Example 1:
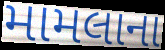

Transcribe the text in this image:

મામલાના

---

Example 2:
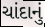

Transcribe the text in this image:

ચાંદાનું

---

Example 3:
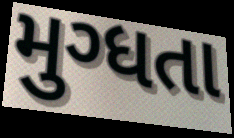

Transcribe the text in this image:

મુગ્ધતા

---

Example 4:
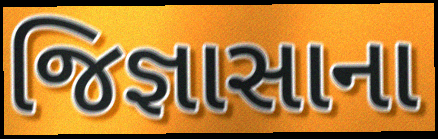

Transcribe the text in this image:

જિજ્ઞાસાના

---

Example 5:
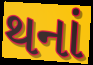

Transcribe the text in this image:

થનાં